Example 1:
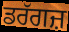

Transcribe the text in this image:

ਡਰੱਗਜ਼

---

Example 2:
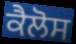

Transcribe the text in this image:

ਕੈਲੋਸ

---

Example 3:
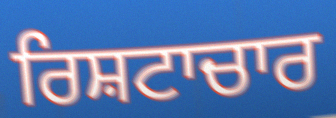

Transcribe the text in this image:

ਰਿਸ਼ਟਾਚਾਰ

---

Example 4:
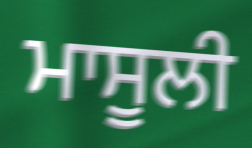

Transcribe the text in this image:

ਮਾਸੂਲੀ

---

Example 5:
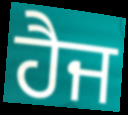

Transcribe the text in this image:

ਹੈਜ